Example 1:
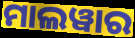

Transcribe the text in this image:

ମାଲୱାର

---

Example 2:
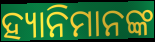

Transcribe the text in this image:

ହ୍ୟାନିମାନଙ୍କ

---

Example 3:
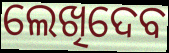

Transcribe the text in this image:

ଲେଖିଦେବ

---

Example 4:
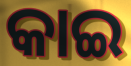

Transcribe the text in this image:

କାଇ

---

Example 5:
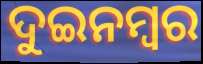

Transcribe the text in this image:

ଦୁଇନମ୍ୱର